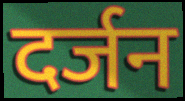
दर्जन